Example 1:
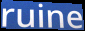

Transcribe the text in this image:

ruine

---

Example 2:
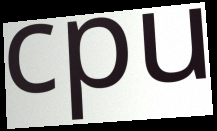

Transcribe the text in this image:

cpu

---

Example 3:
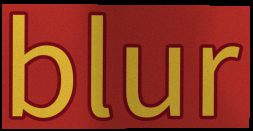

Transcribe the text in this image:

blur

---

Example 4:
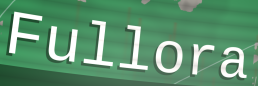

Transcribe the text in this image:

Fullora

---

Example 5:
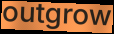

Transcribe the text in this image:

outgrow